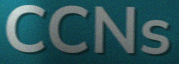
CCNs